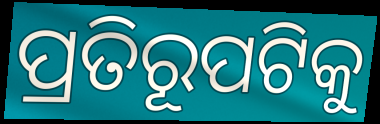
ପ୍ରତିରୂପଟିକୁ